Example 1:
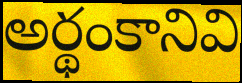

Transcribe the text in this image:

అర్థంకానివి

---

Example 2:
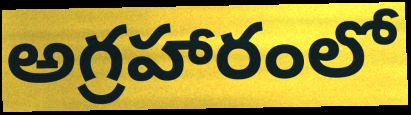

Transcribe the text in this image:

అగ్రహారంలో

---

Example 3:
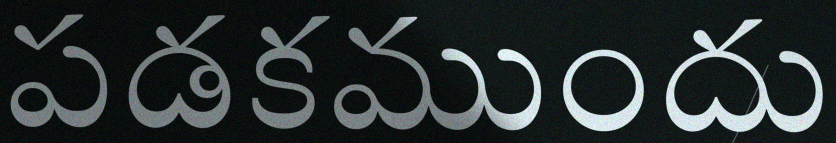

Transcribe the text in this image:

పడకముందు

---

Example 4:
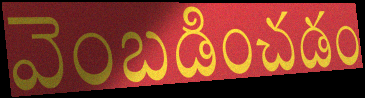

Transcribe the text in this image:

వెంబడించడం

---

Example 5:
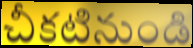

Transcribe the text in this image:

చీకటినుండి